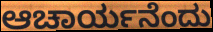
ಆಚಾರ್ಯನೆಂದು